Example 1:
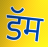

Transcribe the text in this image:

डॅम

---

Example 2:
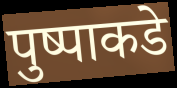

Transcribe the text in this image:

पुष्पाकडे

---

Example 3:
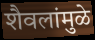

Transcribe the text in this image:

शैवलांमुळे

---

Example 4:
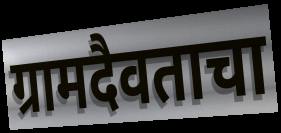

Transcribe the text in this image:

ग्रामदैवताचा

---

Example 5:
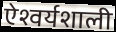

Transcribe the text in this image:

ऐश्वर्यशाली